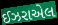
ઈઝરાએલ